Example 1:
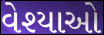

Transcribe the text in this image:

વેશ્યાઓ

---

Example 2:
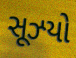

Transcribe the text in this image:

સૂઝ્યો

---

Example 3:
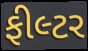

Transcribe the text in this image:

ફીલ્ટર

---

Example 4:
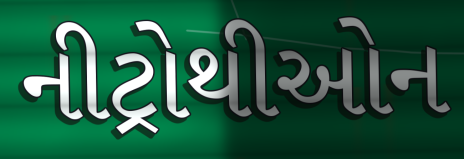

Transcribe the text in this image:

નીટ્રોથીઓન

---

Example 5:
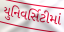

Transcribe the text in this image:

યુનિવર્સિટીમાં